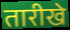
तारीखे